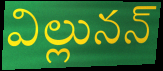
విల్లునన్